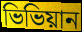
ভিভিয়ান